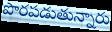
పొరపడుతున్నారు